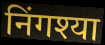
निंगश्या